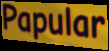
Papular